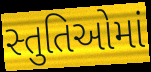
સ્તુતિઓમાં